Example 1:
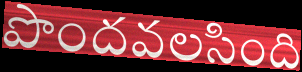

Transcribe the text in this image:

పొందవలసింది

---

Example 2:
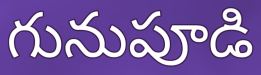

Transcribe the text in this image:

గునుపూడి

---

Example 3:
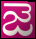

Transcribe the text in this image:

జె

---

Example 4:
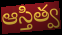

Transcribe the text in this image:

ఆస్తిత్వ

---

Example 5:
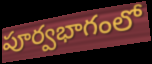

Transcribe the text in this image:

పూర్వభాగంలో